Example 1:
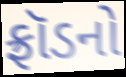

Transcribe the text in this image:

ફ્રૉડનો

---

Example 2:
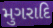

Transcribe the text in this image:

મુગરાદિ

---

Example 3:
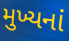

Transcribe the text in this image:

મુખ્યનાં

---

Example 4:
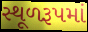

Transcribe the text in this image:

સ્થૂળરૂપમાં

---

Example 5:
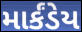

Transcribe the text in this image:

માર્કંડેય